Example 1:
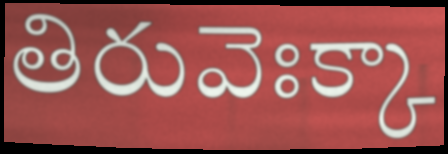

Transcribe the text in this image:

తిరువెఃక్కా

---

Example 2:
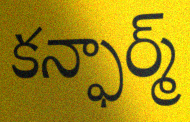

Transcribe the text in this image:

కన్ఫార్మ్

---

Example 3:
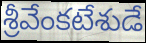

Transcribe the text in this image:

శ్రీవేంకటేశుడే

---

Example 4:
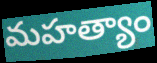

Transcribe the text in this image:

మహత్యాం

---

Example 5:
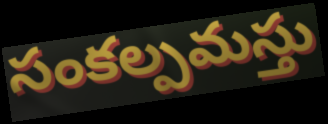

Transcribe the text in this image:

సంకల్పమస్తు